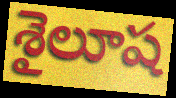
శైలూష